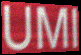
UMI